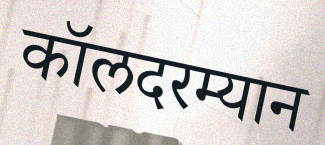
कॉलदरम्यान